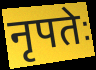
नृपतेः